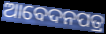
ଆବେଦନପତ୍ର